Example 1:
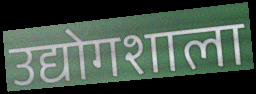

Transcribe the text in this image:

उद्योगशाला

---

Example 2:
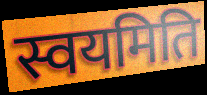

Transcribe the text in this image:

स्वयमिति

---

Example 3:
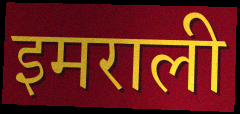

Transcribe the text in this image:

इमराली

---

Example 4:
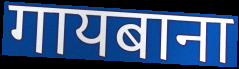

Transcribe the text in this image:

गायबाना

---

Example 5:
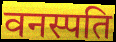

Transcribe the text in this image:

वनस्‍पति